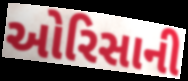
ઓરિસાની